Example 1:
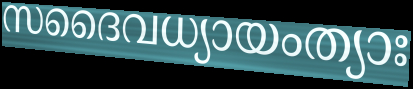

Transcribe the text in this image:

സദൈവധ്യായംത്യാഃ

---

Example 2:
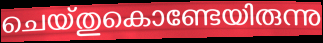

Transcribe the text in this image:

ചെയ്തുകൊണ്ടേയിരുന്നു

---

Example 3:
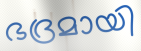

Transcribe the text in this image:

ഭദ്രമായി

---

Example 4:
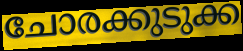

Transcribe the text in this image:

ചോരക്കുടുക്ക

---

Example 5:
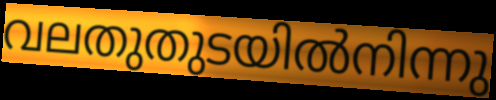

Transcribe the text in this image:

വലതുതുടയിൽനിന്നു